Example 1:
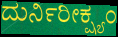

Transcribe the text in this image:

ದುರ್ನಿರೀಕ್ಷ್ಯಂ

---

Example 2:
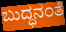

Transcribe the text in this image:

ಬುದ್ಧನಂತೆ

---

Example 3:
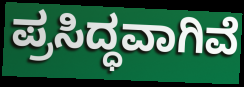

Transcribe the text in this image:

ಪ್ರಸಿದ್ಧವಾಗಿವೆ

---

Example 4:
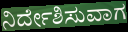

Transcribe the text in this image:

ನಿರ್ದೇಶಿಸುವಾಗ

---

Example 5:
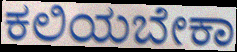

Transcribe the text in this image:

ಕಲಿಯಬೇಕಾ